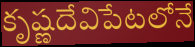
కృష్ణదేవిపేటలోనే